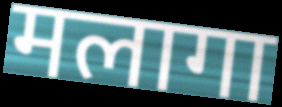
मलागा